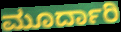
ಮೂರ್ದಾರಿ